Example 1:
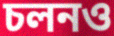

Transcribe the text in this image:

চলনও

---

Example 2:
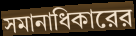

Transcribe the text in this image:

সমানাধিকারের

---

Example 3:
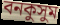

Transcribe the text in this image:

বনকুসুম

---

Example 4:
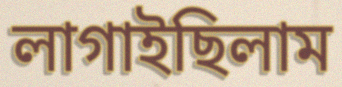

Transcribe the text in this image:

লাগাইছিলাম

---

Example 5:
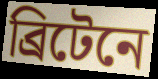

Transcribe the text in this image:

ব্রিটেনে